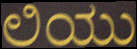
ಲಿಯು